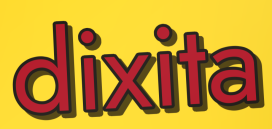
dixita